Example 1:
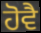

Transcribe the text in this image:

ਹੋਵੈ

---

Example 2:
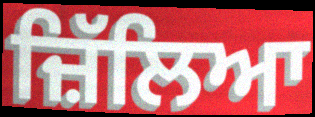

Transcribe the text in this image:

ਜ਼ਿੱਲਿਆ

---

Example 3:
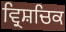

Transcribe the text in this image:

ਵ੍ਰਿਸ਼ਚਿਕ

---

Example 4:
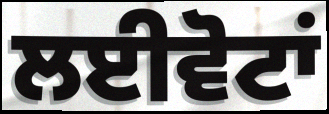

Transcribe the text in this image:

ਲਈਵੋਟਾਂ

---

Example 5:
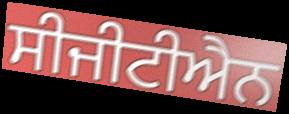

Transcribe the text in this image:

ਸੀਜੀਟੀਐਨ